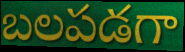
బలపడగా